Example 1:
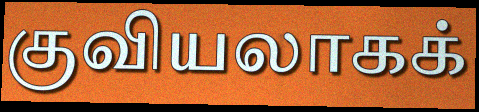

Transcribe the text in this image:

குவியலாகக்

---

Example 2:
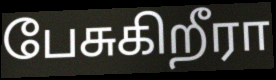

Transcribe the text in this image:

பேசுகிறீரா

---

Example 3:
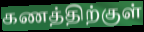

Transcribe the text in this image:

கணத்திற்குள்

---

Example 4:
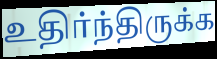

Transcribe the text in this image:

உதிர்ந்திருக்க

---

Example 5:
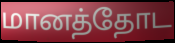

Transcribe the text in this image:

மானத்தோட